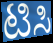
ಟಿಸಿ